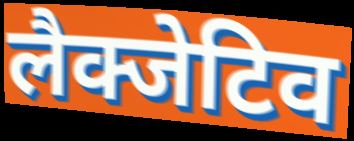
लैक्जेटिव